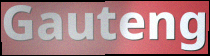
Gauteng